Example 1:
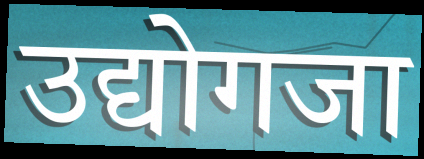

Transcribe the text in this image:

उद्योगजा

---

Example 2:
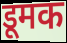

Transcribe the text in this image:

डूमक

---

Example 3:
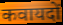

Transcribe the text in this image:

कवायदों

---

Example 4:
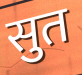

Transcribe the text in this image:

सुत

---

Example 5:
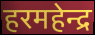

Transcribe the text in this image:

हरमहेन्द्र